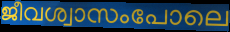
ജീവശ്വാസംപോലെ